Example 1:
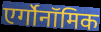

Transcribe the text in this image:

एर्गोनॉमिक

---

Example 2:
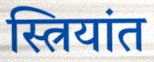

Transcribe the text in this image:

स्त्रियांत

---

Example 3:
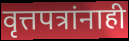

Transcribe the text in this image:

वृत्तपत्रांनाही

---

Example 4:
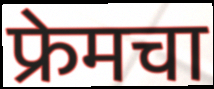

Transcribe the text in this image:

फ्रेमचा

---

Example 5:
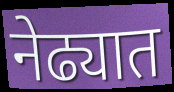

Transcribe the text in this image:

नेढ्यात